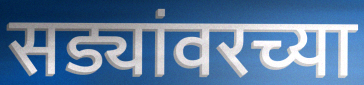
सड्यांवरच्या